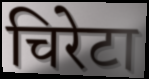
चिरेटा